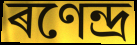
ৰণেন্দ্ৰ